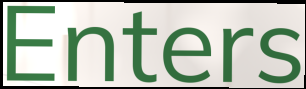
Enters